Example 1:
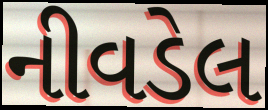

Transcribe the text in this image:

નીવડેલ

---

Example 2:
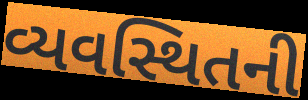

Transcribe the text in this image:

વ્યવસ્થિતની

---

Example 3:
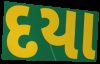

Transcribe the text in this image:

દયા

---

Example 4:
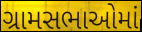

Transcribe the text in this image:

ગ્રામસભાઓમાં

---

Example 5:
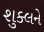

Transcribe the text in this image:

શુક્લને